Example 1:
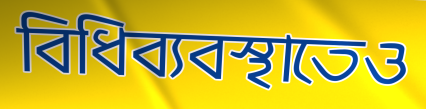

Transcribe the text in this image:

বিধিব্যবস্থাতেও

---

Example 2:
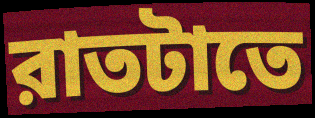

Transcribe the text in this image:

রাতটাতে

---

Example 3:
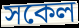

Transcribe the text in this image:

সকেল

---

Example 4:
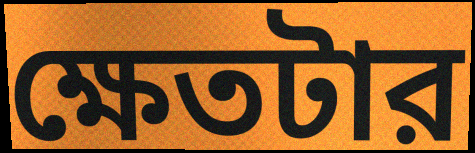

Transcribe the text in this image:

ক্ষেতটার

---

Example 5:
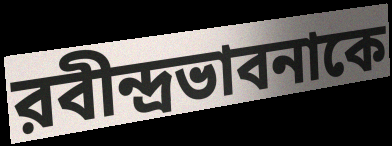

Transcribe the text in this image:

রবীন্দ্রভাবনাকে